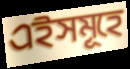
এইসমূহে